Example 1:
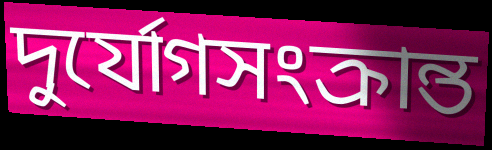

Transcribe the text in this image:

দুর্যোগসংক্রান্ত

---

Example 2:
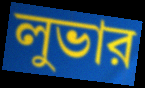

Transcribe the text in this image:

লুভার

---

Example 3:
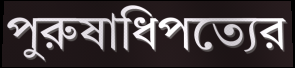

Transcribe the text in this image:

পুরুষাধিপত্যের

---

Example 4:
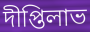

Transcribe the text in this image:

দীপ্তিলাভ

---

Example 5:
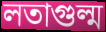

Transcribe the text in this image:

লতাগুল্ম